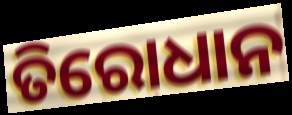
ତିରୋଧାନ